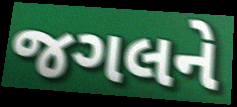
જગલને